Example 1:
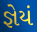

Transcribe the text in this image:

જ્ઞેયં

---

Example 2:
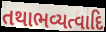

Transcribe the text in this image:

તથાભવ્યત્વાદિ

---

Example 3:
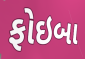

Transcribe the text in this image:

ફોઇબા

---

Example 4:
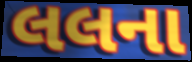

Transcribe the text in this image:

લલના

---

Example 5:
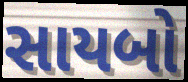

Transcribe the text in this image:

સાયબો